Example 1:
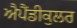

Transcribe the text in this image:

ਐਪੈਂਡੀਕੁਲਰ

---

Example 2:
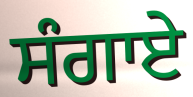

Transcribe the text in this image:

ਸੰਗਾਏ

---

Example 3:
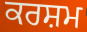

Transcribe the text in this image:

ਕਰਸ਼ਮ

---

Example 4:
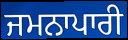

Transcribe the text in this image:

ਜਮਨਾਪਾਰੀ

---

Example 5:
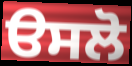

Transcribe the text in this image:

ੳਸਲੋ